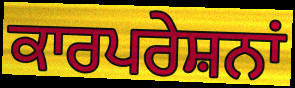
ਕਾਰਪਰੇਸ਼ਨਾਂ